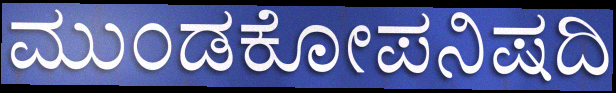
ಮುಂಡಕೋಪನಿಷದಿ